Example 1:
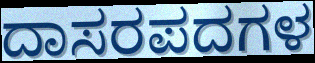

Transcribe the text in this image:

ದಾಸರಪದಗಳ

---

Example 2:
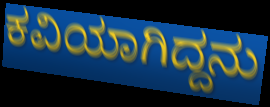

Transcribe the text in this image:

ಕವಿಯಾಗಿದ್ದನು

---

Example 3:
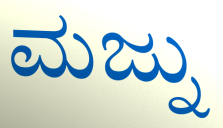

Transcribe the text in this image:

ಮಜ್ನು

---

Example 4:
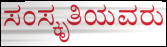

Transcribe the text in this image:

ಸಂಸ್ಕೃತಿಯವರು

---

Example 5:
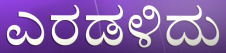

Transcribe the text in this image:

ಎರಡಳಿದು